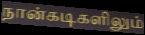
நான்கடிகளிலும்